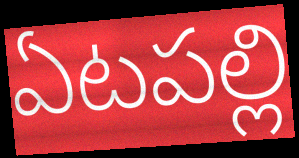
ఏటపల్లి